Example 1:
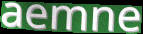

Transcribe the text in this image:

aemne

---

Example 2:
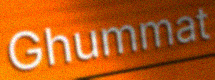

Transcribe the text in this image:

Ghummat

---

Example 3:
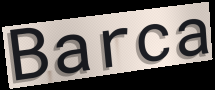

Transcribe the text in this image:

Barca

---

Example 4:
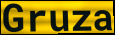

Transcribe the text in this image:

Gruza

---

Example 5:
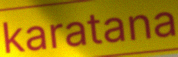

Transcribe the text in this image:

karatana